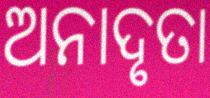
ଅନାଦୃତା